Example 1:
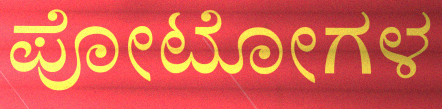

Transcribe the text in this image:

ಪೋಟೋಗಳ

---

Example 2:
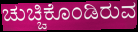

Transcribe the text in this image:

ಚುಚ್ಚಿಕೊಂಡಿರುವ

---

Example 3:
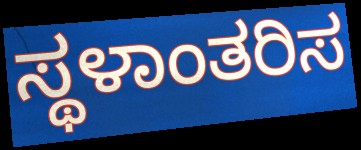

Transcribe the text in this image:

ಸ್ಥಳಾಂತರಿಸ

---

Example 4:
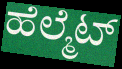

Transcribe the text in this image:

ಹೆಲ್ಮೆಟ್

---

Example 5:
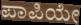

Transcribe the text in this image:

ಪಾಪಿಯೇ